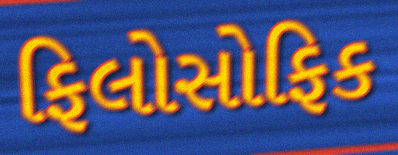
ફિલોસોફિક